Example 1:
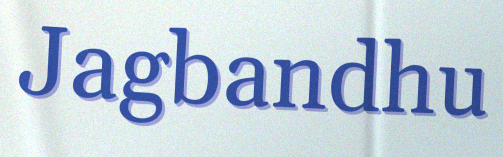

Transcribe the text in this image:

Jagbandhu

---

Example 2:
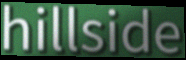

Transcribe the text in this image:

hillside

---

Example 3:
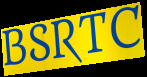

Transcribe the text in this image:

BSRTC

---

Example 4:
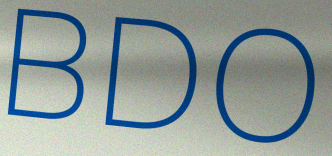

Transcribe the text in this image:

BDO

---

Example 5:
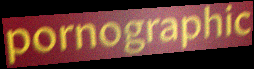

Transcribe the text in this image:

pornographic